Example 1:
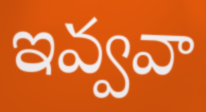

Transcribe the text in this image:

ఇవ్వవా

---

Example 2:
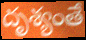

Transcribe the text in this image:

దృశ్యంతే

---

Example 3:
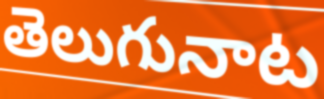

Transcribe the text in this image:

తెలుగునాట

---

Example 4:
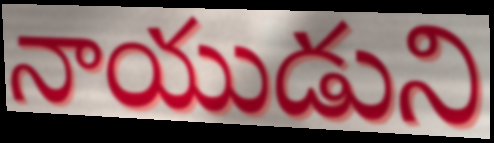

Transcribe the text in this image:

నాయుడుని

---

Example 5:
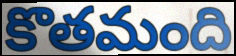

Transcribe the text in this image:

కొతమంది